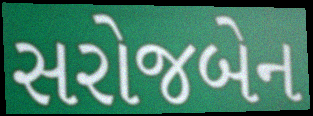
સરોજબેન